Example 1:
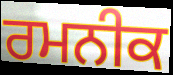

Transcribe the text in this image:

ਰਮਨੀਕ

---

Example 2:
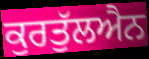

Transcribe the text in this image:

ਕੁਰਤੁੱਲਐਨ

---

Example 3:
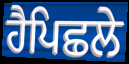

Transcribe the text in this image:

ਹੈਪਿਛਲੇ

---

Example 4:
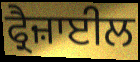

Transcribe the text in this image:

ਫ੍ਰੈਜ਼ਾਈਲ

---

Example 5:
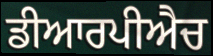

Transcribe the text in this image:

ਡੀਆਰਪੀਐਚ